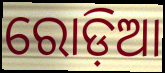
ରୋଡ଼ିଆ